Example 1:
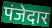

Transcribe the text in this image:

पंजेदार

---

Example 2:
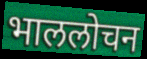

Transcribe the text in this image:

भाललोचन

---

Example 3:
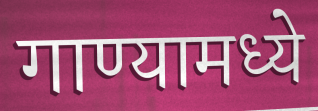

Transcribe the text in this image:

गाण्यामध्ये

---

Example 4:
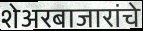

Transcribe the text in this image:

शेअरबाजारांचे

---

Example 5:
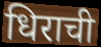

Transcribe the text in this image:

धिराची